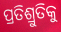
ପ୍ରତିଶ୍ରୁତିକୁ